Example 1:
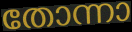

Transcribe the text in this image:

തോന്നാ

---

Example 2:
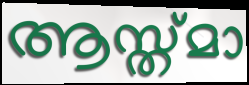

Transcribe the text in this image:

ആസ്ത്മാ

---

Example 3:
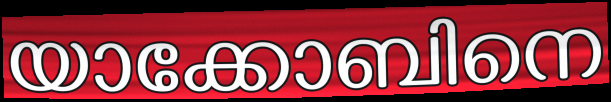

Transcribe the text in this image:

യാക്കോബിനെ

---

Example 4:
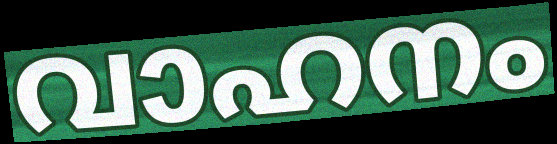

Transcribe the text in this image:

വാഹനം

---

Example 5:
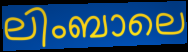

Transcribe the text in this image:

ലിംബാലെ